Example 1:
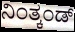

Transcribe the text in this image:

ನಿಂತ್ಕಂಡ್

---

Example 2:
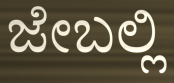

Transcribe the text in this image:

ಜೇಬಲ್ಲಿ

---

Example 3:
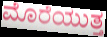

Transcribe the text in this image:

ಮೊರೆಯುತ್ತ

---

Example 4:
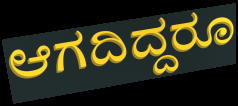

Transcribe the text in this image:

ಆಗದಿದ್ದರೂ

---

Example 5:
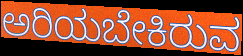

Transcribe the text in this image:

ಅರಿಯಬೇಕಿರುವ